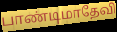
பாண்டிமாதேவி